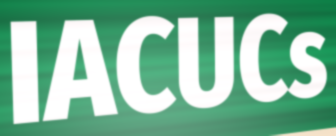
IACUCs